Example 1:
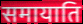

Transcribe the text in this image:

समायाति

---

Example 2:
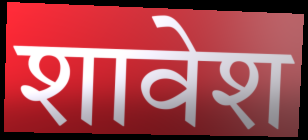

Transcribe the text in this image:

शावेश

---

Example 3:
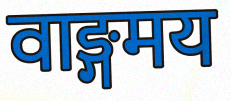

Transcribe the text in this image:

वाङ्गमय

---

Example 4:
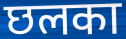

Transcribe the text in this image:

छलका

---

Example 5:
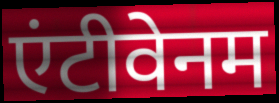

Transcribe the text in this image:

एंटीवेनम